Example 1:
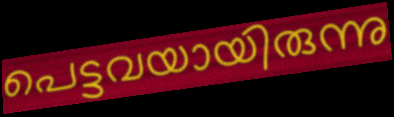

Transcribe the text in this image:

പെട്ടവയായിരുന്നു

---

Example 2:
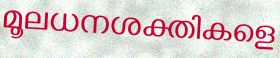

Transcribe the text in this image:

മൂലധനശക്തികളെ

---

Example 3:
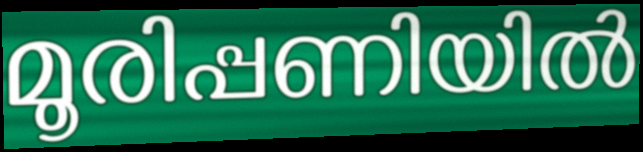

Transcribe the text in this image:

മൂരിപ്പണിയിൽ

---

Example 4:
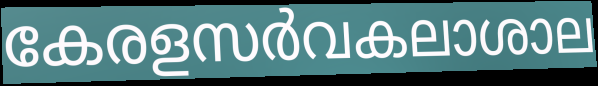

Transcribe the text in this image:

കേരളസർവകലാശാല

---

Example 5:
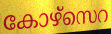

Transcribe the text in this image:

കോഴ്സെറ